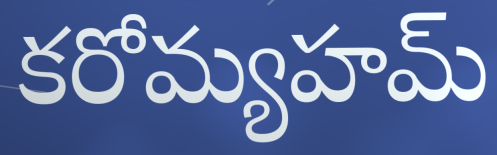
కరోమ్యహమ్